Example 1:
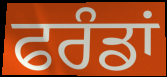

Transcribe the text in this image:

ਫਰੰਡਾਂ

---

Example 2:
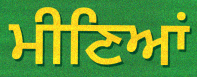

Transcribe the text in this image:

ਮੀਣਿਆਂ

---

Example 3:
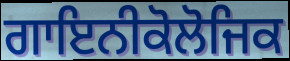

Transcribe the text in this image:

ਗਾਇਨੀਕੋਲੋਜਿਕ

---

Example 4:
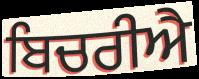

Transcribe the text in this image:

ਬਿਚਰੀਐ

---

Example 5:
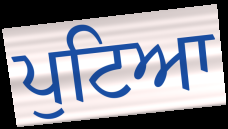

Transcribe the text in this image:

ਪੁਟਿਆ